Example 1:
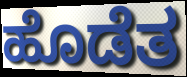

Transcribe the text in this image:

ಹೊಡೆತ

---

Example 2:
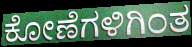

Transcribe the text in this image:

ಕೋಣೆಗಳಿಗಿಂತ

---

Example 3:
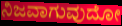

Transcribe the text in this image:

ನಿಜವಾಗುವುದೋ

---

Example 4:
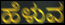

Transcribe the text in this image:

ಹೆಳುವ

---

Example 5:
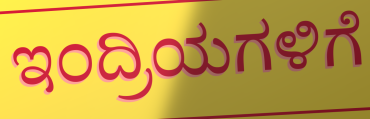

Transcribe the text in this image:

ಇಂದ್ರಿಯಗಳಿಗೆ